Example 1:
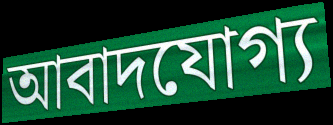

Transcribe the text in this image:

আবাদযোগ্য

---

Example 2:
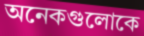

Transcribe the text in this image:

অনেকগুলোকে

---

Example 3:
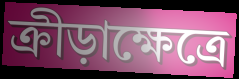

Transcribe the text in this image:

ক্রীড়াক্ষেত্রে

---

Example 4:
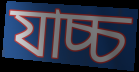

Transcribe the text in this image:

যাচ্চ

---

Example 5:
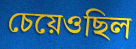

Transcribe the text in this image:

চেয়েওছিল